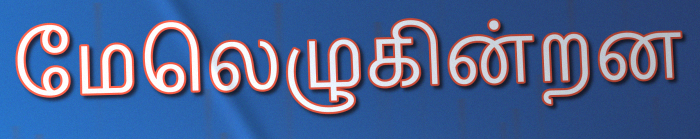
மேலெழுகின்றன